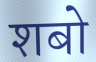
शबो